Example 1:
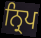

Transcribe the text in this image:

ਨ੍ਰਿਪ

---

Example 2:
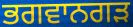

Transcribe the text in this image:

ਭਗਵਾਨਗੜ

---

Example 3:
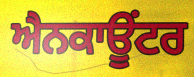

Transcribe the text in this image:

ਐਨਕਾਊਂਟਰ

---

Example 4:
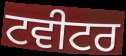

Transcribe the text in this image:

ਟਵੀਟਰ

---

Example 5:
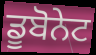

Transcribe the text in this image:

ਡੂਬੋਨੇਟ